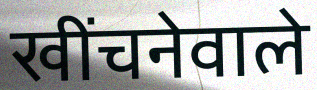
खींचनेवाले